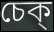
চেক্